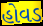
હોવડ